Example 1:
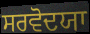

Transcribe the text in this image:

ਸਰਵੋਦਯਾ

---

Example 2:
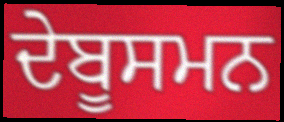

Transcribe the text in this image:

ਦੇਬੂਸਮਨ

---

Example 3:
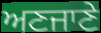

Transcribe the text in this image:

ਅਣਜਾਣੇ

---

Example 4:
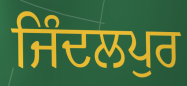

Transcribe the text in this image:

ਜਿੰਦਲਪੁਰ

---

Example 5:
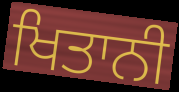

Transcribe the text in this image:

ਖਿਤਾਨੀ